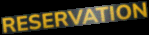
RESERVATION